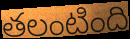
తలంటింది